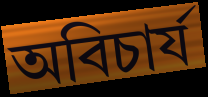
অবিচার্য